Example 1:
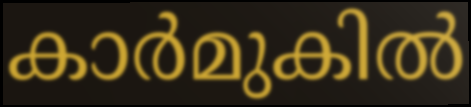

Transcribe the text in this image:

കാർമുകിൽ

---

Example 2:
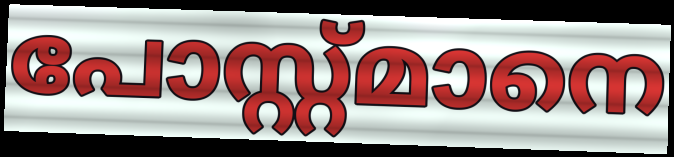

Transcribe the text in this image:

പോസ്റ്റ്മാനെ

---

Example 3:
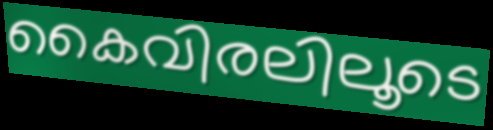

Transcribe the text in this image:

കൈവിരലിലൂടെ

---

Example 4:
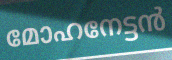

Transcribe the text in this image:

മോഹനേട്ടൻ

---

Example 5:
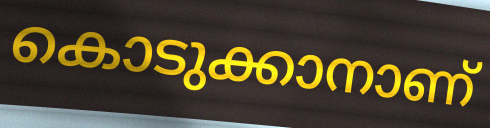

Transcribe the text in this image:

കൊടുക്കാനാണ്